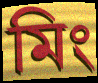
মিং